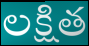
లక్షిత